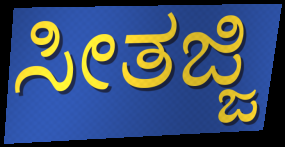
ಸೀತಜ್ಜಿ